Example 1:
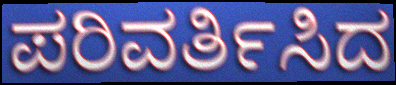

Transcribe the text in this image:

ಪರಿವರ್ತಿಸಿದ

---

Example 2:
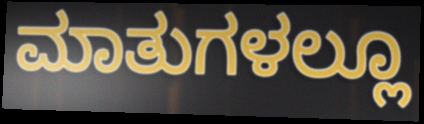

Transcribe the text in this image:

ಮಾತುಗಳಲ್ಲೂ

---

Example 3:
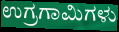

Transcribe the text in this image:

ಉಗ್ರಗಾಮಿಗಳು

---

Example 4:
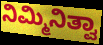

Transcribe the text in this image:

ನಿಮ್ಮಿನಿತ್ವಾ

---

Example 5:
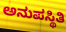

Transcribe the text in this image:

ಅನುಪಸ್ಥಿತಿ